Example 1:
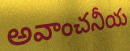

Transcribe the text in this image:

అవాంచనీయ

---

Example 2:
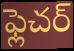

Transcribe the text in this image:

ఫ్లెచర్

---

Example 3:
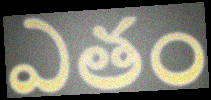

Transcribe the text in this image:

ఎతం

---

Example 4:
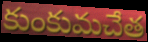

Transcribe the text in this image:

కుంకుమచేత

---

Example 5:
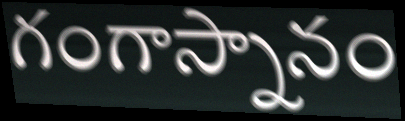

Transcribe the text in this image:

గంగాస్నానం